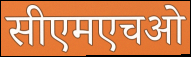
सीएमएचओ